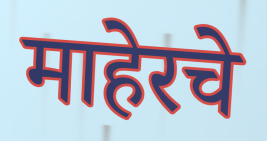
माहेरचे